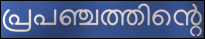
പ്രപഞ്ചത്തിന്റെ